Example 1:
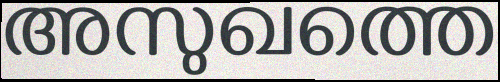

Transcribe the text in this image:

അസുഖത്തെ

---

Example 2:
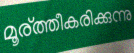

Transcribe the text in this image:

മൂര്ത്തീകരിക്കുന്നു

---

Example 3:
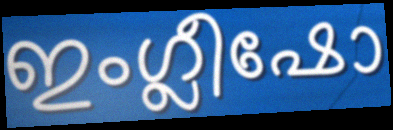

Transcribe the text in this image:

ഇംഗ്ലീഷോ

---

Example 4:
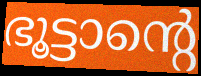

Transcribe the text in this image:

ഭൂട്ടാന്റെ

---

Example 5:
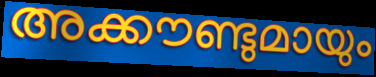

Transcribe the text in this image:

അക്കൗണ്ടുമായും